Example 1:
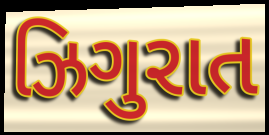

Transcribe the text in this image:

ઝિગુરાત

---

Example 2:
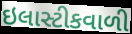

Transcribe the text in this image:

ઇલાસ્ટીકવાળી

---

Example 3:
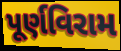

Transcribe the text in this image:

પૂર્ણવિરામ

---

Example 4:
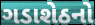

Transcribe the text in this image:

ગડાશેઠનો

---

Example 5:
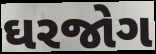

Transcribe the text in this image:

ઘરજોગ